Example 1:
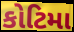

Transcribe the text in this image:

કોટિમા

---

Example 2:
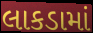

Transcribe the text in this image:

લાકડામાં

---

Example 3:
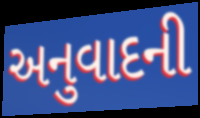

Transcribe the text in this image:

અનુવાદની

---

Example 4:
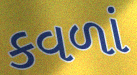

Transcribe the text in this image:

કવળાં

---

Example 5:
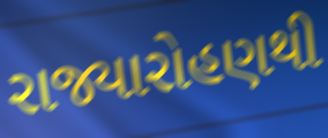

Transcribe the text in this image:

રાજ્યારોહણથી